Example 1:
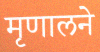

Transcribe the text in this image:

मृणालने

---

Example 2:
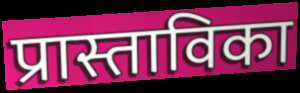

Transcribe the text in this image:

प्रास्ताविका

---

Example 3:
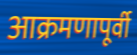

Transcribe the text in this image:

आक्रमणापूर्वी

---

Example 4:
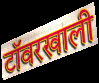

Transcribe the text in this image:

टॉवरखाली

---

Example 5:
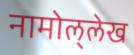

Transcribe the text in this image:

नामोल्लेख